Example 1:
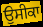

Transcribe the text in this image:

ਉਸੀਕਾ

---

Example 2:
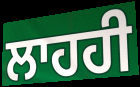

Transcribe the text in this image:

ਲਾਹਹੀ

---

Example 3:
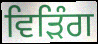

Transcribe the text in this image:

ਵਿੜਿੰਗ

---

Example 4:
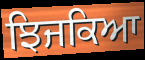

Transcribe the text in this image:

ਝਿਜਕਿਆ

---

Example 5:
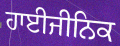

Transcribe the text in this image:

ਹਾਈਜੀਨਿਕ